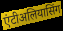
एंटीअलियासिंग